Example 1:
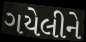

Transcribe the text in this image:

ગયેલીને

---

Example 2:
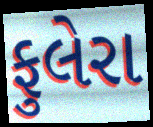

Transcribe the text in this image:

ફુલેરા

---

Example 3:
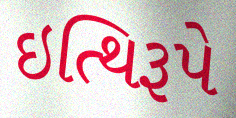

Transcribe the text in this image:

ઇત્થિરૂપે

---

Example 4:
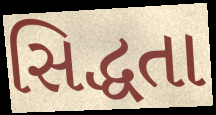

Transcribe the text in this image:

સિદ્ધતા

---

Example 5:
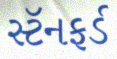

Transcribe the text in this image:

સ્ટૅનફર્ડ